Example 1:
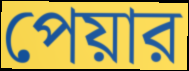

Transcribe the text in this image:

পেয়ার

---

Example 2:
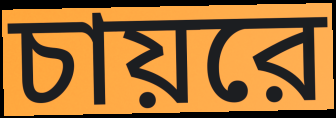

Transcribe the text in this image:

চায়রে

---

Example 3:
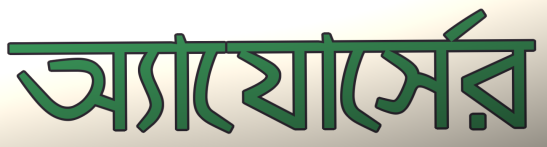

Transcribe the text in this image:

অ্যাযোর্সের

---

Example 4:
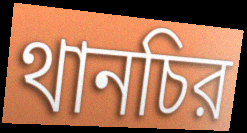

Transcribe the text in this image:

থানচির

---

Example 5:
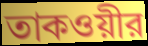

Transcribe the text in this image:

তাকওয়ীর